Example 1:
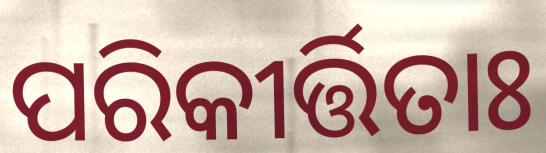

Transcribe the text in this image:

ପରିକୀର୍ତ୍ତିତାଃ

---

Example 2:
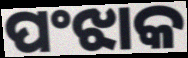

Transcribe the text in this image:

ପଂଝାକ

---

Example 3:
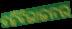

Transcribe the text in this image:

ବହିଁବିଭାଜନର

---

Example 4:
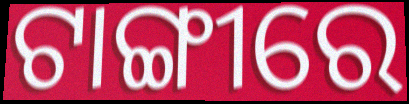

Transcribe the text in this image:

ଟାଙ୍ଗୀରେ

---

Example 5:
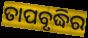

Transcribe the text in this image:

ତାପବୃଦ୍ଧିର